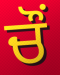
ਚੌਂ